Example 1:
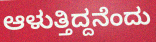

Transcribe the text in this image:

ಆಳುತ್ತಿದ್ದನೆಂದು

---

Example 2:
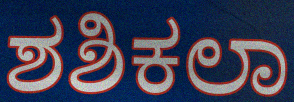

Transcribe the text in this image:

ಶಶಿಕಲಾ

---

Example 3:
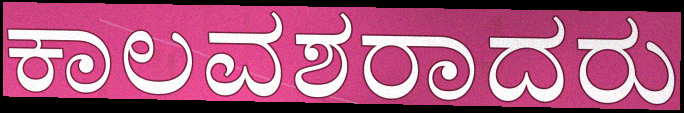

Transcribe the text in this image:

ಕಾಲವಶರಾದರು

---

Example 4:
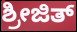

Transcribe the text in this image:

ಶ್ರೀಜಿತ್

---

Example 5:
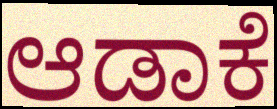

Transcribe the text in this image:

ಆಡಾಕೆ